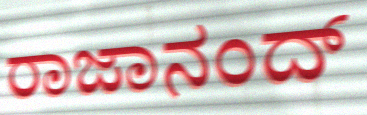
ರಾಜಾನಂದ್